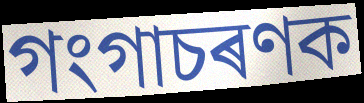
গংগাচৰণক